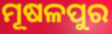
ମୂଷଳପୁର